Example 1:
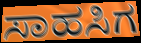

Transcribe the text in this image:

ಸಾಹಸಿಗ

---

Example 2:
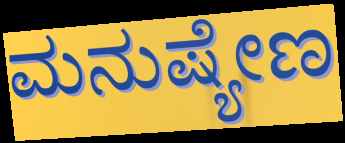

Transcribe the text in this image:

ಮನುಷ್ಯೇಣ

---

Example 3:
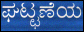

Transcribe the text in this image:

ಘಟ್ಟಣೆಯ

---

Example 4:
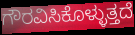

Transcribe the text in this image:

ಗೌರವಿಸಿಕೊಳ್ಳುತ್ತದೆ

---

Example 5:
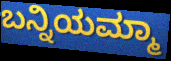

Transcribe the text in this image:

ಬನ್ನಿಯಮ್ಮಾ